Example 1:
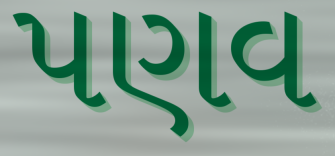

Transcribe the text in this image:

પણવ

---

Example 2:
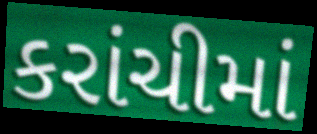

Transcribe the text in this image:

કરાંચીમાં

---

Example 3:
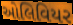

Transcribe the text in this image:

ઓલિવિયર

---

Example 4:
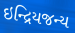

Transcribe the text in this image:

ઇન્દ્રિયજન્ય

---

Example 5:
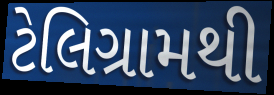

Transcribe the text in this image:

ટેલિગ્રામથી